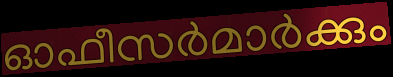
ഓഫീസർമാർക്കും